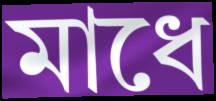
মাধে